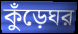
কুঁড়েঘর